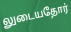
லுடையதோர்